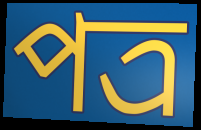
পত্ৰ